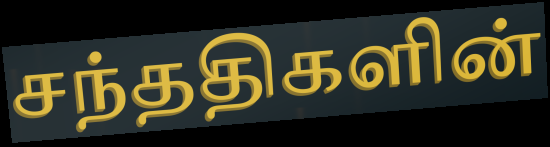
சந்ததிகளின்